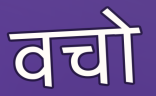
वचो